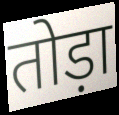
तोड़ा